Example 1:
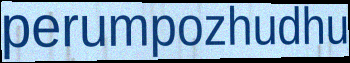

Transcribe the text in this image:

perumpozhudhu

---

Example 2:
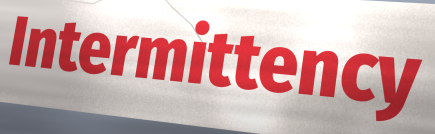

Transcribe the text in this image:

Intermittency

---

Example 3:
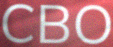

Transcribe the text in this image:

CBO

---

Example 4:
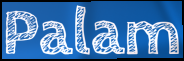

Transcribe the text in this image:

Palam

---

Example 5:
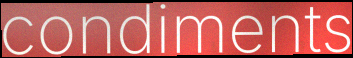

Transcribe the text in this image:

condiments